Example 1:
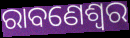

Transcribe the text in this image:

ରାବଣେଶ୍ୱର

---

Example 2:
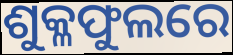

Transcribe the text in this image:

ଶୁକ୍ଳଫୁଲରେ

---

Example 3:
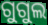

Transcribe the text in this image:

ଗୁଗୁଲ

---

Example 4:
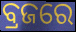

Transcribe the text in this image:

ବ୍ରଜରେ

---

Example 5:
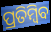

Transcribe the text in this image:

ପ୍ରତିମ୍ବିବ